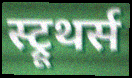
स्ट्रूथर्स